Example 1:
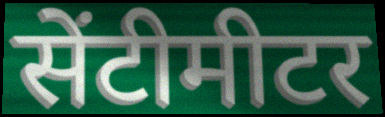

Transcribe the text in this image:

सेंटीमीटर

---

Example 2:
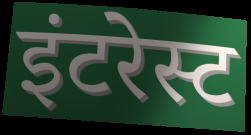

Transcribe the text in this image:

इंटरेस्ट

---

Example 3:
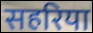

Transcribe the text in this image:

सहरिया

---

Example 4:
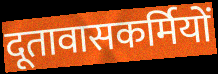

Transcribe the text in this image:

दूतावासकर्मियों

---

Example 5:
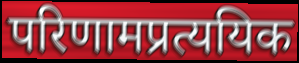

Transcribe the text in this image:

परिणामप्रत्ययिक